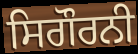
ਸਿਗੌਰਨੀ